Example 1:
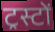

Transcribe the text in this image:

ट्रस्टों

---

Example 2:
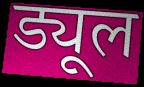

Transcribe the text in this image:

ड्यूल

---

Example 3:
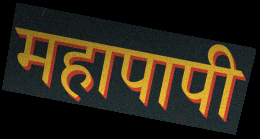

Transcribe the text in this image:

महापापी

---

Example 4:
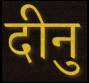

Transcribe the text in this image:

दीनु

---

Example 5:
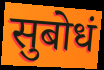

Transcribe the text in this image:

सुबोधं